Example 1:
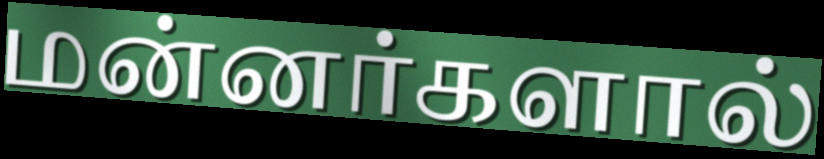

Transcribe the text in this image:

மன்னர்களால்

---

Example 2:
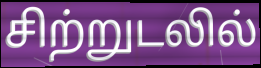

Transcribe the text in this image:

சிற்றுடலில்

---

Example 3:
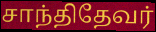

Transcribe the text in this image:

சாந்திதேவர்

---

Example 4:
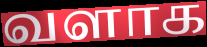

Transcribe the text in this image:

வளாக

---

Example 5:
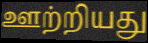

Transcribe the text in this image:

ஊற்றியது